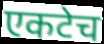
एकटेच